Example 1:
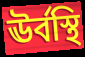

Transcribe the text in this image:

ঊর্বস্থি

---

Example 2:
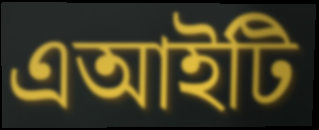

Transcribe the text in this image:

এআইটি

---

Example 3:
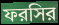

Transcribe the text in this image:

ফরসির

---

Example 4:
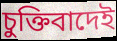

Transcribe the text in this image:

চুক্তিবাদেই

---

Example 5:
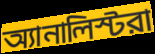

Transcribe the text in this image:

অ্যানালিস্টরা